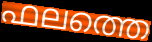
ഫലത്തെ